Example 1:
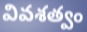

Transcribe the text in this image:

వివశత్వం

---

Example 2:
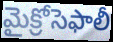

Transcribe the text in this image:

మైక్రోసెఫాలీ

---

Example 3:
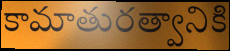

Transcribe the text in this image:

కామాతురత్వానికి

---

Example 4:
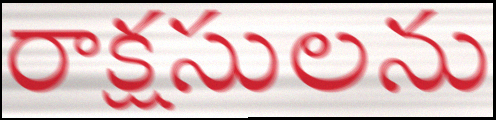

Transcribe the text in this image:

రాక్షసులను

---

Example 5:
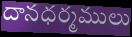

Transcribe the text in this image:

దానధర్మములు